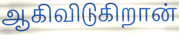
ஆகிவிடுகிறான்